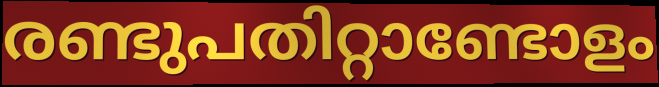
രണ്ടുപതിറ്റാണ്ടോളം